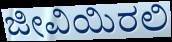
ಜೀವಿಯಿರಲಿ